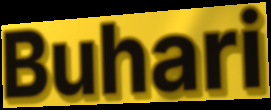
Buhari